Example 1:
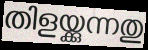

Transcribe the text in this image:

തിളയ്ക്കുന്നതു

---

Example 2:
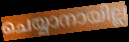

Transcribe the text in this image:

ചെയ്യാനായില്ല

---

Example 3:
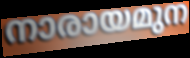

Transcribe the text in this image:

നാരായമുന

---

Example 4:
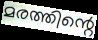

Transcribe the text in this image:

മരത്തിന്റെ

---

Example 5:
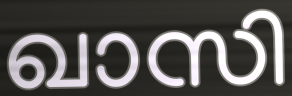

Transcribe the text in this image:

ഖാസി